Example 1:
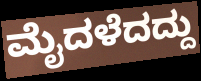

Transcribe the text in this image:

ಮೈದಳೆದದ್ದು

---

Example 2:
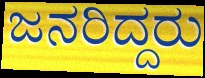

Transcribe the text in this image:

ಜನರಿದ್ದರು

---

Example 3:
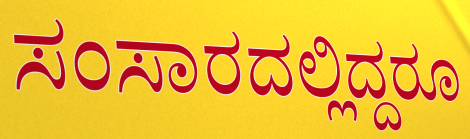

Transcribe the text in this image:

ಸಂಸಾರದಲ್ಲಿದ್ದರೂ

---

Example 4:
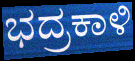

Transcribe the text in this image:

ಭದ್ರಕಾಳಿ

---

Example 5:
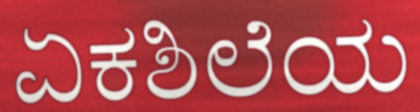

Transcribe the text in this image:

ಏಕಶಿಲೆಯ